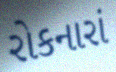
રોકનારાં